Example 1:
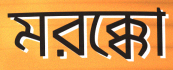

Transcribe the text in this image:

মরক্কো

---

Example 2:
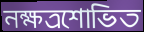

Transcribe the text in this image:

নক্ষত্রশোভিত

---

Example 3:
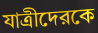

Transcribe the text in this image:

যাত্রীদেরকে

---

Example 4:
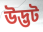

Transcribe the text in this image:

উদ্ভট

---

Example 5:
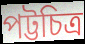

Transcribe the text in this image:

পট্টচিত্র